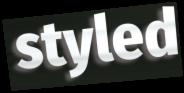
styled